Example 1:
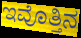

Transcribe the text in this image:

ಇವೊತ್ತಿನ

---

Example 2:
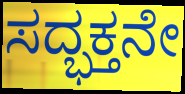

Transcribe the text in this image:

ಸದ್ಭಕ್ತನೇ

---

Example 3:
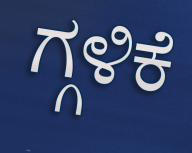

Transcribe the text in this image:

ಗ್ಗಳಿಕೆ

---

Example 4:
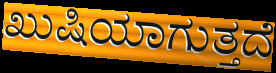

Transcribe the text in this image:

ಖುಷಿಯಾಗುತ್ತದೆ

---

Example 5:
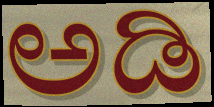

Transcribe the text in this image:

ಅಡಿ